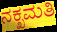
ನಕ್ಖಮತಿ